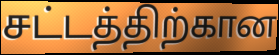
சட்டத்திற்கான